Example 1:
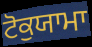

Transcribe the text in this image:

ਟੋਕੁਯਾਮਾ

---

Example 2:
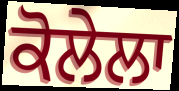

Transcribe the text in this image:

ਕੋਲੇਲਾ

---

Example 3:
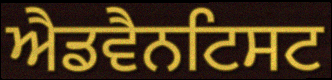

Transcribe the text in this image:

ਐਡਵੈਨਟਿਸਟ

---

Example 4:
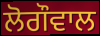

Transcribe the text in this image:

ਲੋਗੌਵਾਲ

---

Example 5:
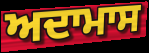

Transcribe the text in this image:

ਅਦਾਮਾਸ